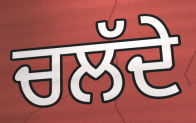
ਚਲੱਦੇ